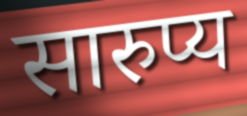
सारुप्य